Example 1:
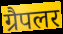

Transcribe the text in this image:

ग्रैपलर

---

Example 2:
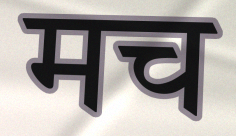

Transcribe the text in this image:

मच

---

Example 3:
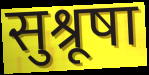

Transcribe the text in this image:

सुश्रूषा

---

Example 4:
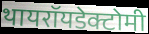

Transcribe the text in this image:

थायरॉयडेक्टोमी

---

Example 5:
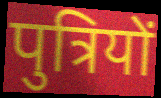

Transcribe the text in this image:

पुत्रियों